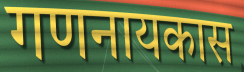
गणनायकास